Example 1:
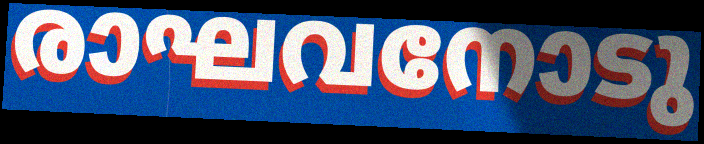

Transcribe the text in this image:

രാഘവനോടു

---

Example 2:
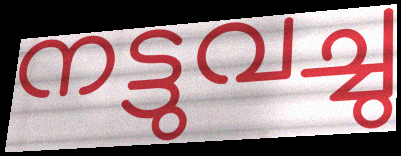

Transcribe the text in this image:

നട്ടുവച്ചു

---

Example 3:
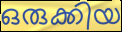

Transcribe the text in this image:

ഒരുക്കിയ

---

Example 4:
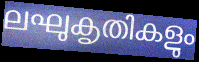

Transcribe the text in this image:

ലഘുകൃതികളും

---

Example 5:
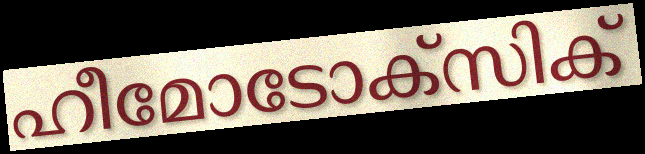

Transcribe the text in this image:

ഹീമോടോക്സിക്